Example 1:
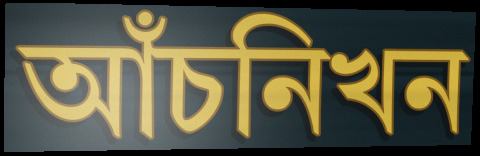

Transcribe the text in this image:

আঁচনিখন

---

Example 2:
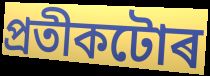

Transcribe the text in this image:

প্ৰতীকটোৰ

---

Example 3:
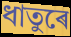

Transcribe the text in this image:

ধাতুৰে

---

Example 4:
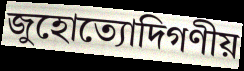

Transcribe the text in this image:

জুহোত্যোদিগণীয়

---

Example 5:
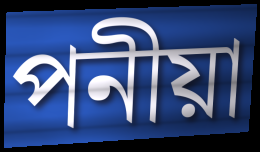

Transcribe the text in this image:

পনীয়া